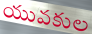
యువకుల